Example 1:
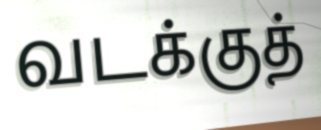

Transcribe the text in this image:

வடக்குத்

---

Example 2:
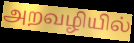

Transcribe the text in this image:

அறவழியில்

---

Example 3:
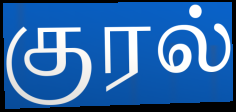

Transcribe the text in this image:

குரல்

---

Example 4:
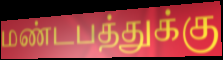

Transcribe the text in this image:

மண்டபத்துக்கு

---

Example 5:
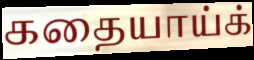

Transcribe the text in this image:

கதையாய்க்